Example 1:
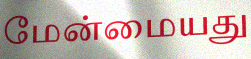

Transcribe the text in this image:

மேன்மையது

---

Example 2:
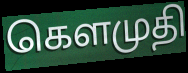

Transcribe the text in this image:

கௌமுதி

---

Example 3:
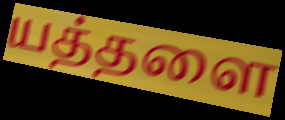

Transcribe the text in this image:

யத்தளை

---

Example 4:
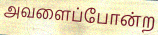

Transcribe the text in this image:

அவளைப்போன்ற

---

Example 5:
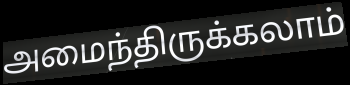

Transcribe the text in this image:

அமைந்திருக்கலாம்